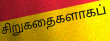
சிறுகதைகளாகப்